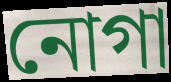
নোগা